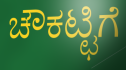
ಚೌಕಟ್ಟಿಗೆ